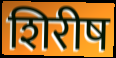
शिरीष